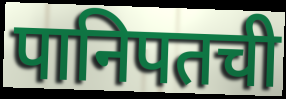
पानिपतची